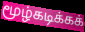
மூழ்கடிக்கக்